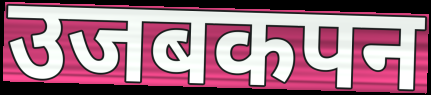
उजबकपन